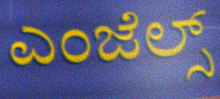
ಎಂಜೆಲ್ಸ್